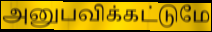
அனுபவிக்கட்டுமே